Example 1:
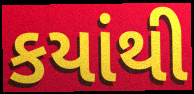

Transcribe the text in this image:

કયાંથી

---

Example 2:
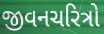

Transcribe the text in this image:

જીવનચરિત્રો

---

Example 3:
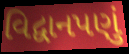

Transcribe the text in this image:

વિદ્વાનપણું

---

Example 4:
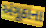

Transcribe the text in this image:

અંગૂઠાના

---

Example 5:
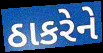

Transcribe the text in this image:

ઠાકરેને